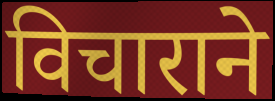
विचाराने